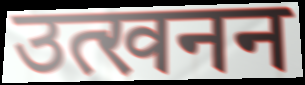
उत्‍खनन